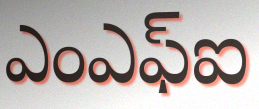
ఎంఎఫ్ఐ